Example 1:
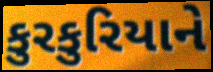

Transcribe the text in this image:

કુરકુરિયાને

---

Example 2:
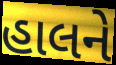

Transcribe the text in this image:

હાલને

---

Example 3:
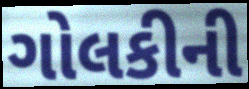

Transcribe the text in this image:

ગોલકીની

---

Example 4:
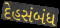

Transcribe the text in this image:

દેહસંબંધ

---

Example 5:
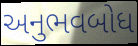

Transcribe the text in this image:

અનુભવબોધ